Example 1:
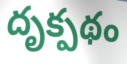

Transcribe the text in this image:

దృక్పథం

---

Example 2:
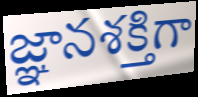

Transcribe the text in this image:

జ్ఞానశక్తిగా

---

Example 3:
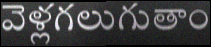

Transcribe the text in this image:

వెళ్లగలుగుతాం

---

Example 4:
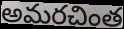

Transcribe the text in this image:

అమరచింత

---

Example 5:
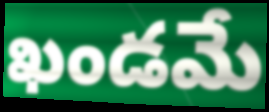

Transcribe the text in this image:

ఖండమే